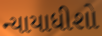
ન્યાયાધીશો